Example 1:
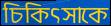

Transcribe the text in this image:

চিকিৎসাকে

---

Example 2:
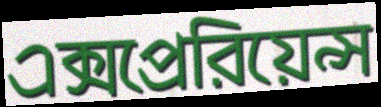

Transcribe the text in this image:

এক্সপ্রেরিয়েন্স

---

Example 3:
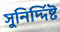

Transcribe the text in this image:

সুনির্দ্দিষ্ট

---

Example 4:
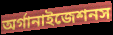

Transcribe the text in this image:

অর্গানাইজেশনস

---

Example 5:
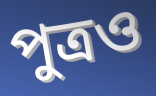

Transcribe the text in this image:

পুত্রও